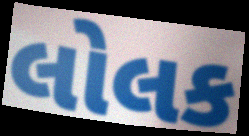
લોલક